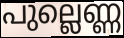
പുല്ലെണ്ണ